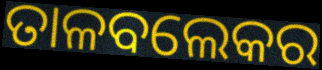
ତାଳବଲେକର